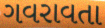
ગવરાવતા